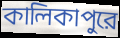
কালিকাপুরে